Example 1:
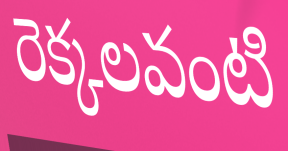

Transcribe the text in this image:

రెక్కలవంటి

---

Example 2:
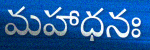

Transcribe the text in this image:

మహాధనః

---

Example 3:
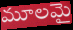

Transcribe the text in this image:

మూలమై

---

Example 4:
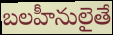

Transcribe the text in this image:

బలహీనులైతే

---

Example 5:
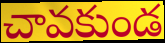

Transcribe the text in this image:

చావకుండ